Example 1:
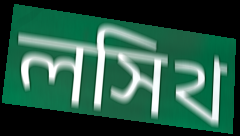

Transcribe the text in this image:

লসিথ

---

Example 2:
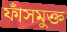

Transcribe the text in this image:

ফাঁসমুক্ত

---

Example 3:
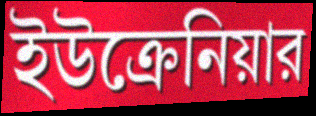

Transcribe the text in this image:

ইউক্রেনিয়ার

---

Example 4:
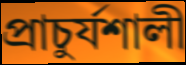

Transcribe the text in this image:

প্রাচুর্যশালী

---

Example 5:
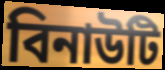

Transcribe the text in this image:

বিনাউটি